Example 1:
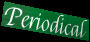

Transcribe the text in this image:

Periodical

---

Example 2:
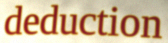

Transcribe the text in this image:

deduction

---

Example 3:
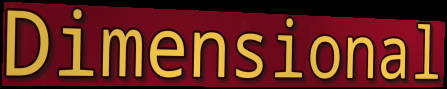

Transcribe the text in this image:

Dimensional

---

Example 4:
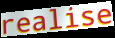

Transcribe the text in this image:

realise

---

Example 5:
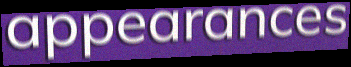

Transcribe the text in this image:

appearances